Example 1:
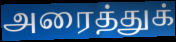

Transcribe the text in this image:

அரைத்துக்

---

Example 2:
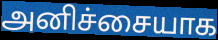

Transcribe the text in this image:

அனிச்சையாக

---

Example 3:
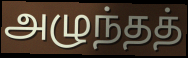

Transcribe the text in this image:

அழுந்தத்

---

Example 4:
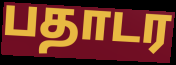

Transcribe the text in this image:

பதாடர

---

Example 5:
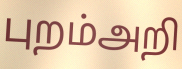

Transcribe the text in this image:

புறம்அறி